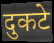
दुकटे